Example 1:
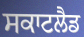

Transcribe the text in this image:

ਸਕਾਟਲੈਡ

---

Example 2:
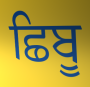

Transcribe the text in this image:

ਛਿਬੂ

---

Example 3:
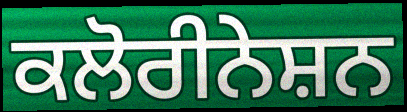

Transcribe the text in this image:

ਕਲੋਰੀਨੇਸ਼ਨ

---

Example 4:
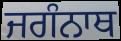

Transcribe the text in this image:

ਜਗੰਨਾਥ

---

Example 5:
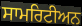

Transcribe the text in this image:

ਸਾਮਰਿਟੀਅਨ